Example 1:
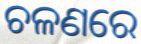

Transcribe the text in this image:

ଚଳଣରେ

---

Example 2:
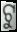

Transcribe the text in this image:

ଟୁ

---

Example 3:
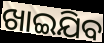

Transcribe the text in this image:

ଖାଇଯିବ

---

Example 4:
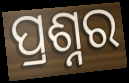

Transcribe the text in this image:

ପ୍ରଶ୍ନର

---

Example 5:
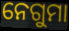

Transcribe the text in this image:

ନେଗୁମା